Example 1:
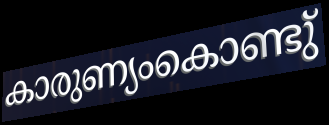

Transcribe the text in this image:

കാരുണ്യംകൊണ്ടു്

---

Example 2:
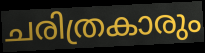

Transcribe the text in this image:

ചരിത്രകാരും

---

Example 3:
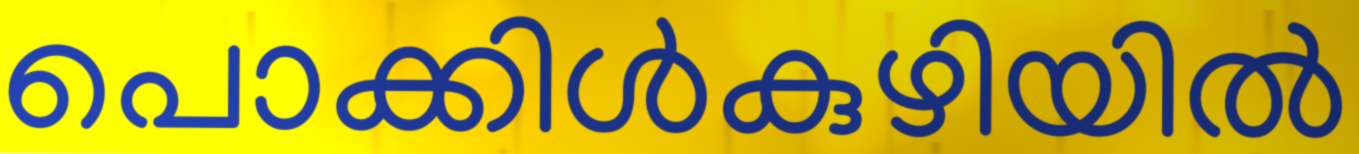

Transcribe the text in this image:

പൊക്കിൾകുഴിയിൽ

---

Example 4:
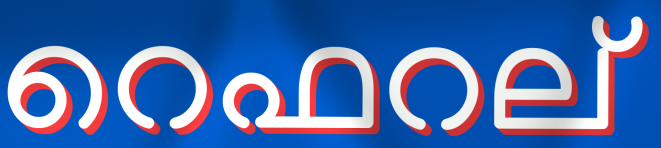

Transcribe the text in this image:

റെഫറല്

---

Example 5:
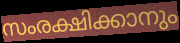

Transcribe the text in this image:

സംരക്ഷിക്കാനും